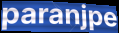
paranjpe